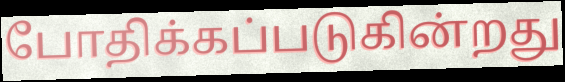
போதிக்கப்படுகின்றது